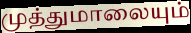
முத்துமாலையும்